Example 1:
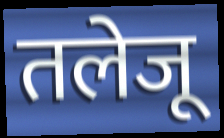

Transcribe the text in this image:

तलेजू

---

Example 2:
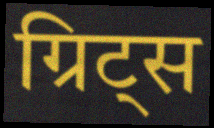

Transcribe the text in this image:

ग्रिट्स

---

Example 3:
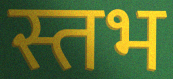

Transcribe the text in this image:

स्तभ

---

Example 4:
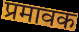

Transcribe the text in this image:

प्रमावक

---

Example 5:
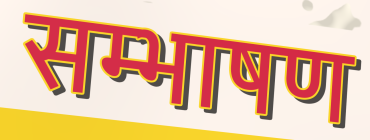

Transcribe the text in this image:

सम्भाषण